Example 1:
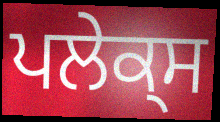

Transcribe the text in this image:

ਪਲੇਕ੍ਸ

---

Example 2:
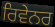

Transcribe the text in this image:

ਰਿਵੇਨਰ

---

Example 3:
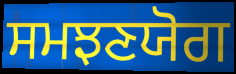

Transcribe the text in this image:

ਸਮਝਣਯੋਗ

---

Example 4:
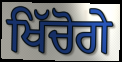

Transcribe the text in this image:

ਖਿੱਚੋਗੇ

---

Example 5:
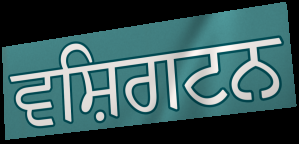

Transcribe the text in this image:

ਵਸ਼ਿਗਟਨ